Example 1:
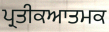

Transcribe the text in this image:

ਪ੍ਰਤੀਕਆਤਮਕ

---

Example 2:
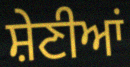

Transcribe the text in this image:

ਸ਼ੇਣੀਆਂ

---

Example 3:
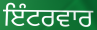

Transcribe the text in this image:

ਇੰਟਰਵਾਰ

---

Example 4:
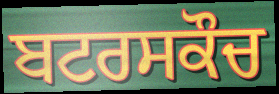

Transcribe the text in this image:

ਬਟਰਸਕੌਚ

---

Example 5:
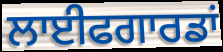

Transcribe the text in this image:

ਲਾਈਫਗਾਰਡਾਂ